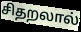
சிதறலால்